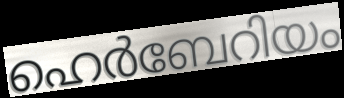
ഹെർബേറിയം